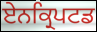
ਏਨਕ੍ਰਿਪਟਡ